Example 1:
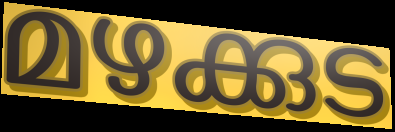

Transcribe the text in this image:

മഴക്കുട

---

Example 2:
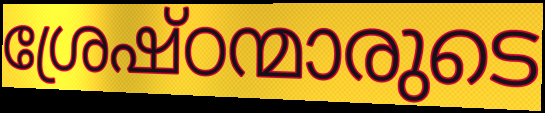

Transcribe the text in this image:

ശ്രേഷ്ഠന്മാരുടെ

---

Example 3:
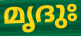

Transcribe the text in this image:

മൃദുഃ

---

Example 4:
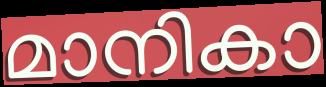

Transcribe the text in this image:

മാനികാ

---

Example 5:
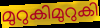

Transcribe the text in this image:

മുറുകിമുറുകി